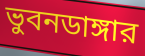
ভুবনডাঙ্গার